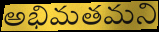
అభిమతమని